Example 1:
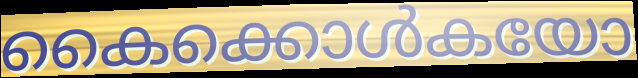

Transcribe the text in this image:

കൈക്കൊൾകയോ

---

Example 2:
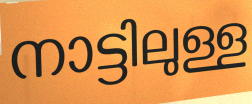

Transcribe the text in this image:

നാട്ടിലുള്ള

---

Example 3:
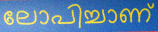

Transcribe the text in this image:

ലോപിച്ചാണ്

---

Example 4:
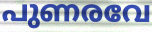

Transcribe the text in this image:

പുണരവേ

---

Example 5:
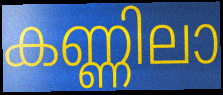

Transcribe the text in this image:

കണ്ണിലാ